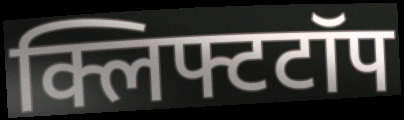
क्लिफ्टटॉप